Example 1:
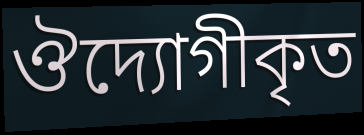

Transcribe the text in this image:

ঔদ্যোগীকৃত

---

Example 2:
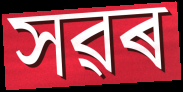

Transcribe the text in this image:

সৱৰ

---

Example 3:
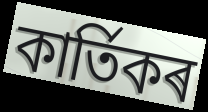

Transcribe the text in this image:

কাৰ্তিকৰ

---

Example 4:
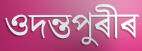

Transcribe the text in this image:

ওদন্তপুৰীৰ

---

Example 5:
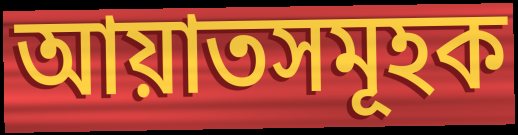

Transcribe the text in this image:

আয়াতসমূহক